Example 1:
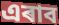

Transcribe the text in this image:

এৰাব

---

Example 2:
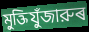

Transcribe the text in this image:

মুক্তিযুঁজাৰুৰ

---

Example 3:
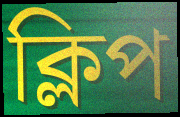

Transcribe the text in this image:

ক্লিপ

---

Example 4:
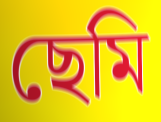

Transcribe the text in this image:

ছেমি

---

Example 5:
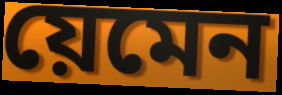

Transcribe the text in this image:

য়েমেন